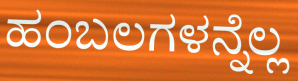
ಹಂಬಲಗಳನ್ನೆಲ್ಲ